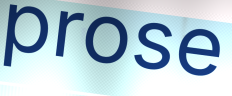
prose